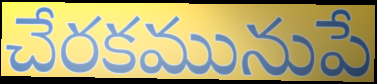
చేరకమునుపే